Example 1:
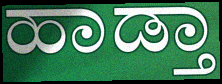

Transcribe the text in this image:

ಹಾಡ್ತಾ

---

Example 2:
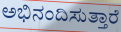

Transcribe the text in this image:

ಅಭಿನಂದಿಸುತ್ತಾರೆ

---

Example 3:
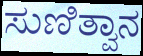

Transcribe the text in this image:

ಸುಣಿತ್ವಾನ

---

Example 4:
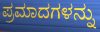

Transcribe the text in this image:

ಪ್ರಮಾದಗಳನ್ನು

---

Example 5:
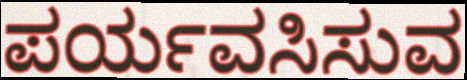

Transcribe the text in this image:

ಪರ್ಯವಸಿಸುವ